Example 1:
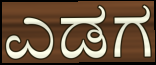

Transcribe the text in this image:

ಎಡಗ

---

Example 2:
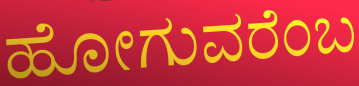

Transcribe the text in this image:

ಹೋಗುವರೆಂಬ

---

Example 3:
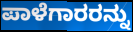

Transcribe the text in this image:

ಪಾಳೆಗಾರರನ್ನು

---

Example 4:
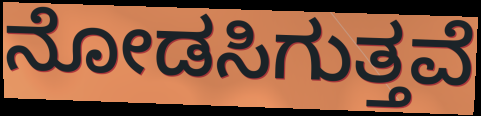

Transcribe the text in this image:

ನೋಡಸಿಗುತ್ತವೆ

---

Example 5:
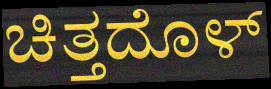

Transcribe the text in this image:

ಚಿತ್ತದೊಳ್